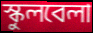
স্কুলবেলা